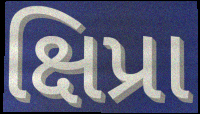
ક્ષિપ્રા